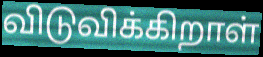
விடுவிக்கிறாள்